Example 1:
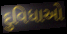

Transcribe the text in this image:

દુવિધાઓ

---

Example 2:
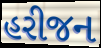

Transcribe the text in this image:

હરીજન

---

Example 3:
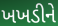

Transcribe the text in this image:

ખખડીને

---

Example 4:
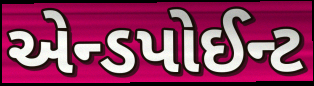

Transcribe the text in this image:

એન્ડપોઈન્ટ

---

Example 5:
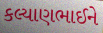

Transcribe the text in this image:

કલ્યાણભાઈને